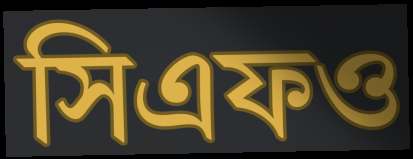
সিএফও